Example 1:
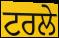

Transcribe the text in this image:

ਟਰਲੇ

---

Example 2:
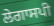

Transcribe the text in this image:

ਲੇਗਾਸਪੀ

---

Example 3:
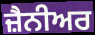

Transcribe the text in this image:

ਜ਼ੈਨੀਅਰ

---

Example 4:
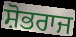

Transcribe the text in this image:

ਸ਼ੋਭਰਾਜ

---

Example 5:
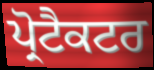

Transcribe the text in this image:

ਪ੍ਰੋਟੈਕਟਰ